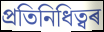
প্ৰতিনিধিত্বৰ